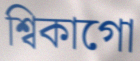
শ্বিকাগো